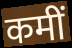
कमीं